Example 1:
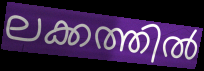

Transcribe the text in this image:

ലക്കത്തിൽ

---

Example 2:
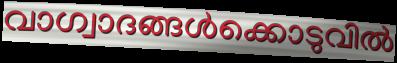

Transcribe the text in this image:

വാഗ്വാദങ്ങൾക്കൊടുവിൽ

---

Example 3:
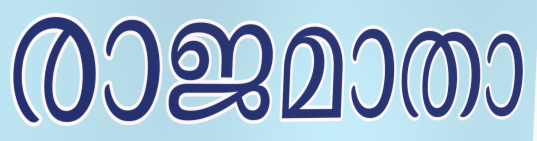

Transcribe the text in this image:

രാജമാതാ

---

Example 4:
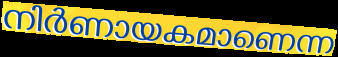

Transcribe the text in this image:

നിർണായകമാണെന്ന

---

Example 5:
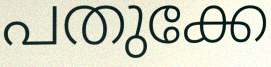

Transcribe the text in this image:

പതുക്കേ